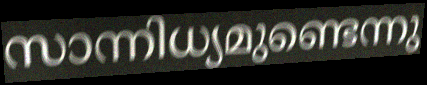
സാന്നിധ്യമുണ്ടെന്നു